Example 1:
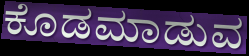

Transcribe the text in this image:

ಕೊಡಮಾಡುವ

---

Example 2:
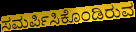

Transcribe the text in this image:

ಸಮರ್ಪಿಸಿಕೊಂಡಿರುವ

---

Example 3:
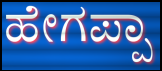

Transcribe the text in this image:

ಹೇಗಪ್ಪಾ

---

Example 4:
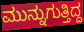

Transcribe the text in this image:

ಮುನ್ನುಗುತ್ತಿದ್ದ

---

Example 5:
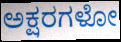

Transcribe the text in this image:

ಅಕ್ಷರಗಳೋ